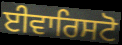
ਈਵਾਰਿਸਟੋ